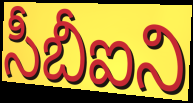
సీబీఐని